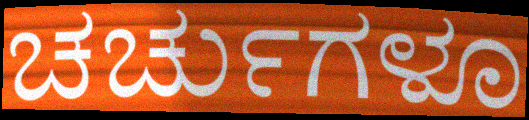
ಚರ್ಚುಗಳೂ